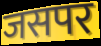
जसपर